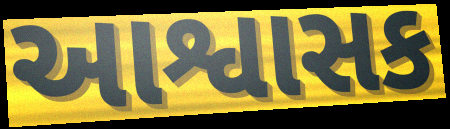
આશ્વાસક